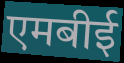
एमबीई